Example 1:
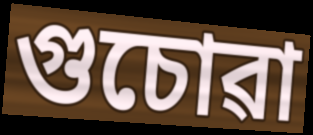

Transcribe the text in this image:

গুচোৱা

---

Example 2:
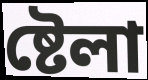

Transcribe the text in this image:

ষ্টেলা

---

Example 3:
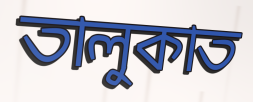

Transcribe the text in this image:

তালুকাত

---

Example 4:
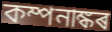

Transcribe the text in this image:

কম্পনাঙ্কৰ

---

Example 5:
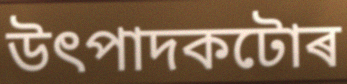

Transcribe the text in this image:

উৎপাদকটোৰ